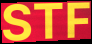
STF